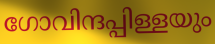
ഗോവിന്ദപ്പിള്ളയും